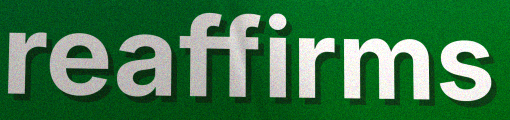
reaffirms